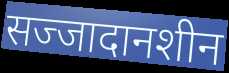
सज्जादानशीन